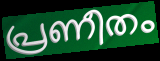
പ്രണീതം